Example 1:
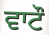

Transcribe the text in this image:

ਵਾਟੌ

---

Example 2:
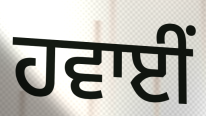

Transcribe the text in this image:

ਹਵਾਈਂ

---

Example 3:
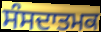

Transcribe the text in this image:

ਸੰਸਦਾਤਮਕ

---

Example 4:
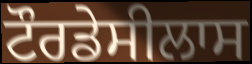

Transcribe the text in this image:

ਟੌਰਡੇਸੀਲਾਸ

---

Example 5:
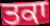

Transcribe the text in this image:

ਤਕਾ